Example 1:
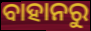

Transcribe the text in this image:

ବାହାନରୁ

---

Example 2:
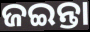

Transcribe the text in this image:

ଜଇନ୍ତା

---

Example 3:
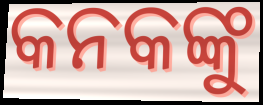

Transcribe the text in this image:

କନକଙ୍କୁ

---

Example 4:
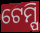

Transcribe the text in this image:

ଟେମ୍ପି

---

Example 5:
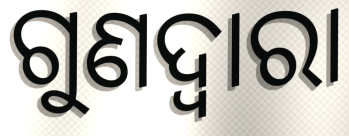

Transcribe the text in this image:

ଗୁଣଦ୍ଵାରା